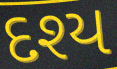
દશ્ય